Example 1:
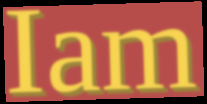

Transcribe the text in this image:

Iam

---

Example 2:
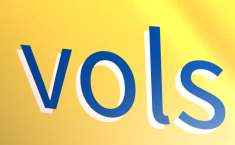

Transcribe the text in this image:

vols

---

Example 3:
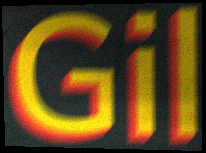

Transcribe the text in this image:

Gil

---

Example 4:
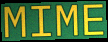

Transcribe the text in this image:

MIME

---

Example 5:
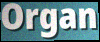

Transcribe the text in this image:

Organ